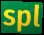
spl